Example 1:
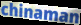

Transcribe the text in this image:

chinaman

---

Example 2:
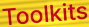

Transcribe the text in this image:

Toolkits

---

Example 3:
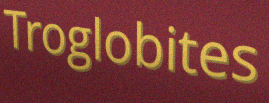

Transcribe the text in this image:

Troglobites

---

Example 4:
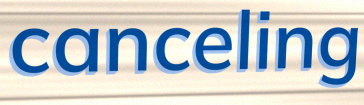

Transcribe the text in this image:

canceling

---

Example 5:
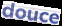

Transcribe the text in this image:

douce